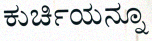
ಕುರ್ಚಿಯನ್ನೂ